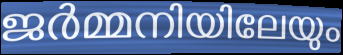
ജർമ്മനിയിലേയും